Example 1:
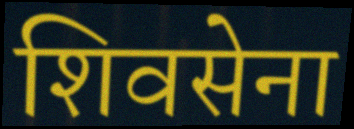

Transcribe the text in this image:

शिवसेना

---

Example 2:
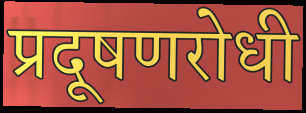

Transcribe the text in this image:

प्रदूषणरोधी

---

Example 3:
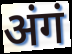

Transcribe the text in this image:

अंगं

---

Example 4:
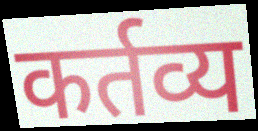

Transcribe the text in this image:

कर्तव्य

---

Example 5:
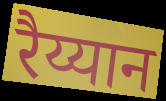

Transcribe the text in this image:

रैय्यान